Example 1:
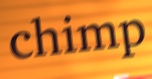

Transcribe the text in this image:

chimp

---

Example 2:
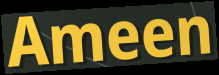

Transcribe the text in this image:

Ameen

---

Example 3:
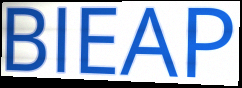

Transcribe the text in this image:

BIEAP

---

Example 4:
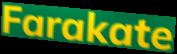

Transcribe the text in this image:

Farakate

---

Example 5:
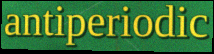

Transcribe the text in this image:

antiperiodic